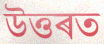
উত্তৰত